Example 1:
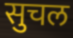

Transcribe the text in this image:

सुचल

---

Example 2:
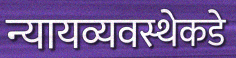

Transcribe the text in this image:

न्यायव्यवस्थेकडे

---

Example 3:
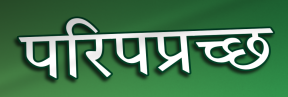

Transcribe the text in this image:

परिपप्रच्छ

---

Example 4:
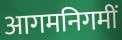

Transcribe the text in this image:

आगमनिगमीं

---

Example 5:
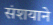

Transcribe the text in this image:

संशयाने